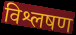
विश्लषण